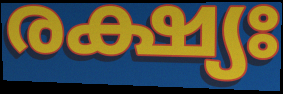
രക്ഷ്യഃ